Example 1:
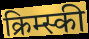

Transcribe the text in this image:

क्रिम्स्की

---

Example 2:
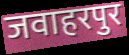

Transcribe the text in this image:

जवाहरपुर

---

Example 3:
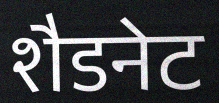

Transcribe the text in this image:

शैडनेट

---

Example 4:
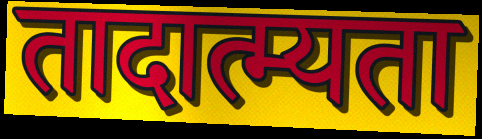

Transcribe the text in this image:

तादात्म्यता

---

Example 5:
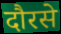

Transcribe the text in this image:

दौरसे